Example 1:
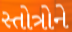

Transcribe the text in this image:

સ્તોત્રોને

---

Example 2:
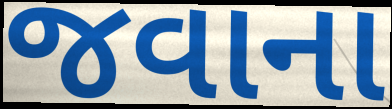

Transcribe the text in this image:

જવાના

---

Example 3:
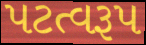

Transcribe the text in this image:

પટત્વરૂપ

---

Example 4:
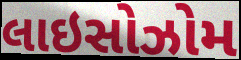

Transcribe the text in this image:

લાઇસોઝોમ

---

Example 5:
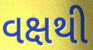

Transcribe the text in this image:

વક્ષથી